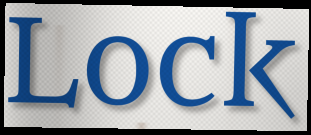
Lock